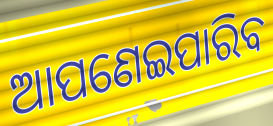
ଆପଣେଇପାରିବ